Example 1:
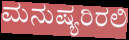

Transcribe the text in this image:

ಮನುಷ್ಯರಿರಲಿ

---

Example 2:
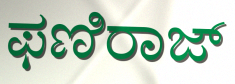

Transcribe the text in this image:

ಫಣಿರಾಜ್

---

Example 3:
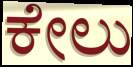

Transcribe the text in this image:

ಕೇಲು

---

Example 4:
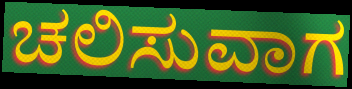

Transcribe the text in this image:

ಚಲಿಸುವಾಗ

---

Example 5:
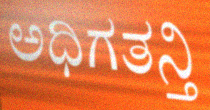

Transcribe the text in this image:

ಅಧಿಗತನ್ತಿ